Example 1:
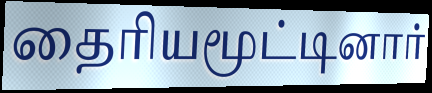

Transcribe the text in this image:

தைரியமூட்டினார்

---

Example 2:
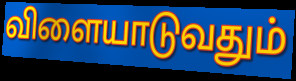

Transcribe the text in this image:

விளையாடுவதும்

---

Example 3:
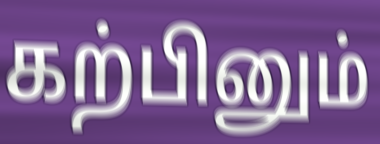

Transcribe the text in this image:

கற்பினும்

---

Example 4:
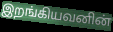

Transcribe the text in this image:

இறங்கியவனின்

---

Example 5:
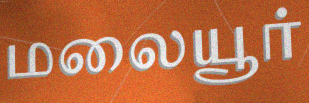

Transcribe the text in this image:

மலையூர்